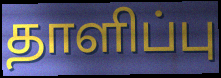
தாளிப்பு